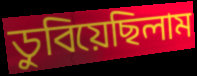
ডুবিয়েছিলাম